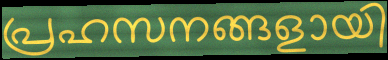
പ്രഹസനങ്ങളായി